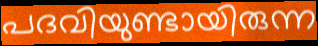
പദവിയുണ്ടായിരുന്ന